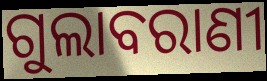
ଗୁଲାବରାଣୀ